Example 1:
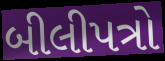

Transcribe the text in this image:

બીલીપત્રો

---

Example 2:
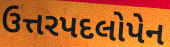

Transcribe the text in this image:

ઉત્તરપદલોપેન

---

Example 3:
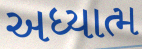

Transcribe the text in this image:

અધ્યાત્મ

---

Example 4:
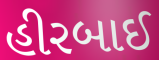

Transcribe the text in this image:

હીરબાઈ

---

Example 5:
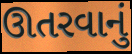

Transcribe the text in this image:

ઊતરવાનું